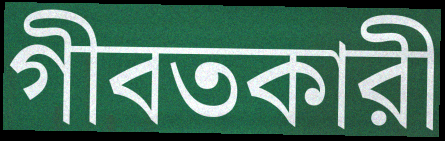
গীবতকারী